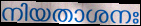
നിയതാശനഃ